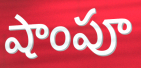
షాంపూ